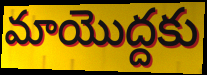
మాయొద్దకు